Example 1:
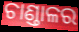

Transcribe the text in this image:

ଚାଣ୍ଡାଳର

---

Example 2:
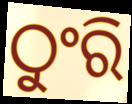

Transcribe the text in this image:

ଠୁଂରି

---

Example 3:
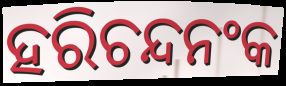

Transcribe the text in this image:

ହରିଚନ୍ଦନଂକ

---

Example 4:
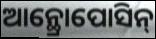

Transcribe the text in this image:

ଆନ୍ଥ୍ରୋପୋସିନ୍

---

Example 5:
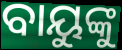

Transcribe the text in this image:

ବାୟୁଙ୍କୁ